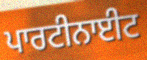
ਪਾਰਟੀਨਾਈਟ